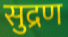
सुद्रण